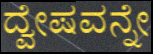
ದ್ವೇಷವನ್ನೇ